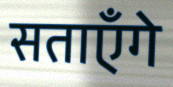
सताएँगे